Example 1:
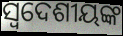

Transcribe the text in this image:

ସ୍ଵଦେଶୀୟଙ୍କ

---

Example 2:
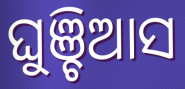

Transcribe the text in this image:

ଘୁଞ୍ଚିଆସ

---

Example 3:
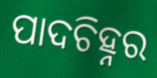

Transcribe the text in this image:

ପାଦଚିହ୍ନର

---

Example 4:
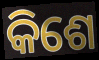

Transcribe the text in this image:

କିଶେ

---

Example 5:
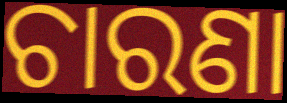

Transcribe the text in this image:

ଚାରଣା